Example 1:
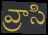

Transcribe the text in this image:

వ్రాసి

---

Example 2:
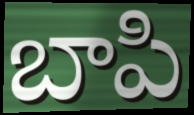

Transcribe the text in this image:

బాపి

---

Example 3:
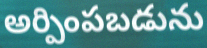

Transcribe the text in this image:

అర్పింపబడును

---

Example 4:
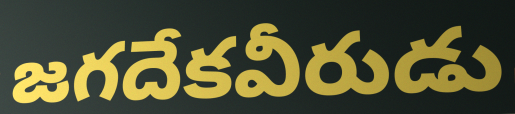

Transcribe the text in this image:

జగదేకవీరుడు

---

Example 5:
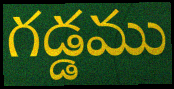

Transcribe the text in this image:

గడ్డము